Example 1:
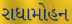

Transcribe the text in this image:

રાધામોહન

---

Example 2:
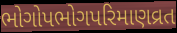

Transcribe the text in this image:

ભોગોપભોગપરિમાણવ્રત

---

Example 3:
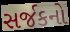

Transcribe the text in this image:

સર્જકનો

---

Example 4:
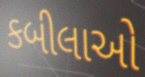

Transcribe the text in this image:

કબીલાઓ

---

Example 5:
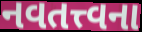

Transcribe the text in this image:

નવતત્ત્વના